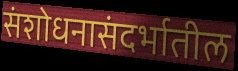
संशोधनासंदर्भातील